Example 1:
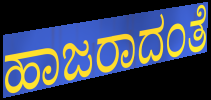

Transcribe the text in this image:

ಹಾಜರಾದಂತೆ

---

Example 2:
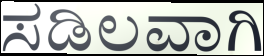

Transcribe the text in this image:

ಸಡಿಲವಾಗಿ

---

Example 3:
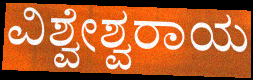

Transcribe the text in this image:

ವಿಶ್ವೇಶ್ವರಾಯ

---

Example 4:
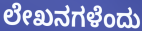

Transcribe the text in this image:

ಲೇಖನಗಳೆಂದು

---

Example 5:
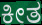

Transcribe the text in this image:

ಕೀತ